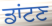
ਡਾਂਟਣ